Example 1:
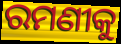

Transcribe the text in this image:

ରମଣୀକୁ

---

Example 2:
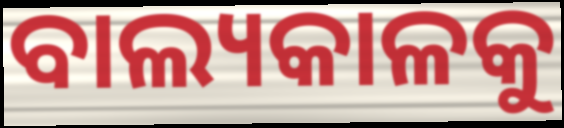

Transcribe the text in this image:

ବାଲ୍ୟକାଳକୁ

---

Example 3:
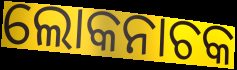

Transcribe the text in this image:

ଲୋକନାଚକ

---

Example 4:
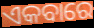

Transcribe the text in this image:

ଏକବାରେ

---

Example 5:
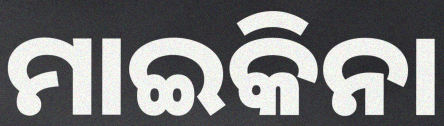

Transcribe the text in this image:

ମାଇକିନା